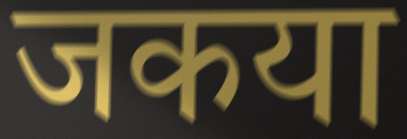
जकया